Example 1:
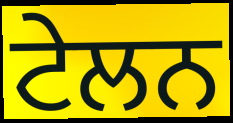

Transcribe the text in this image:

ਟੇਲਨ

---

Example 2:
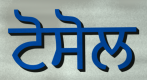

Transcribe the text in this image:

ਟੋਸੋਲ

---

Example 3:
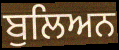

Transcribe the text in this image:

ਬੁਲਿਅਨ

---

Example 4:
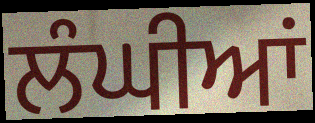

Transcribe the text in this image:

ਲੰਘੀਆਂ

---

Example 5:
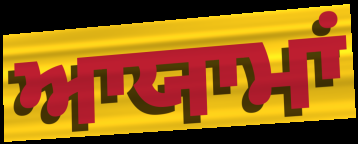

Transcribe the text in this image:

ਆਯਾਮਾਂ